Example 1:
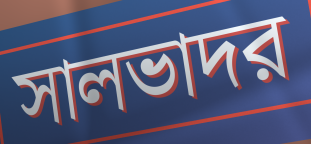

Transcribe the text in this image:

সালভাদর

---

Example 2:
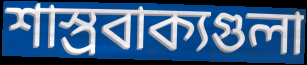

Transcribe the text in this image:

শাস্ত্রবাক্যগুলা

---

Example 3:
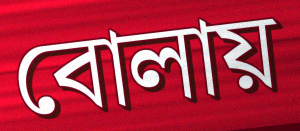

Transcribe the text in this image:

বোলায়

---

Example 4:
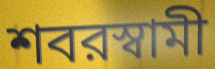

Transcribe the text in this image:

শবরস্বামী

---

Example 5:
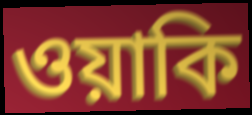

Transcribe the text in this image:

ওয়াকি